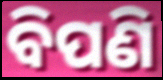
ବିପଣି